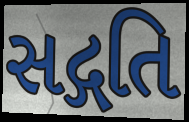
સદ્ગતિ